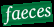
faeces